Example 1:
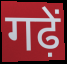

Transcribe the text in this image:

गढ़ें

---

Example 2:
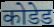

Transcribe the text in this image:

कोडेड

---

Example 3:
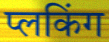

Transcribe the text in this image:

प्लकिंग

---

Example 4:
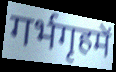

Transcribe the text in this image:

गर्भगृहमें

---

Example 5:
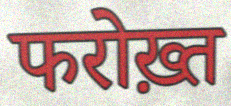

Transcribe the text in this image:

फरोख़्त